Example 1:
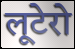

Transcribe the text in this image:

लूटेरो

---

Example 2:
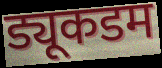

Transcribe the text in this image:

ड्यूकडम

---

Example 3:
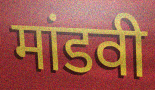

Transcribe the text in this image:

मांडवी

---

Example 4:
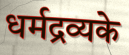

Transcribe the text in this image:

धर्मद्रव्यके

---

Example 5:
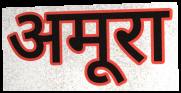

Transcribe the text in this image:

अमूरा